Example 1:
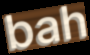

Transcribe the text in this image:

bah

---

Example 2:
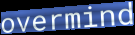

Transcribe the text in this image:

overmind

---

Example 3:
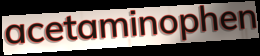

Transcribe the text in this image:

acetaminophen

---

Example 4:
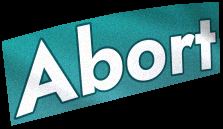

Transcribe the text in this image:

Abort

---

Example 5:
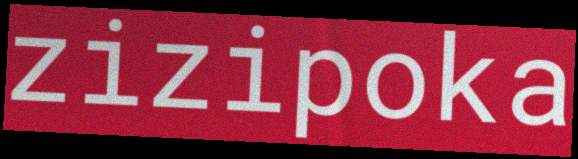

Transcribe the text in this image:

zizipoka